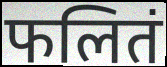
फलितं